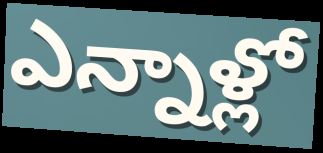
ఎన్నాళ్లో